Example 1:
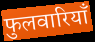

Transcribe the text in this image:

फुलवारियाँ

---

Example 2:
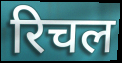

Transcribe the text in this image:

रिचल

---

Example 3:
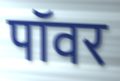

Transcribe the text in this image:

पॉवर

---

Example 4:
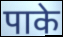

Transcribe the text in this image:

पाके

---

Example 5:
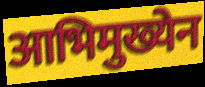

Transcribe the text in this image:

आभिमुख्येन